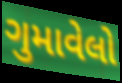
ગુમાવેલો